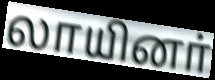
லாயினர்